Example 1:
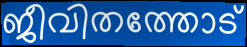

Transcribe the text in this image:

ജീവിതത്തോട്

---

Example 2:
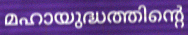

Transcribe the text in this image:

മഹായുദ്ധത്തിന്റെ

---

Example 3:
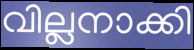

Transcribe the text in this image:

വില്ലനാക്കി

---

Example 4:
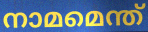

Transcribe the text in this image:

നാമമെന്ത്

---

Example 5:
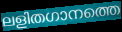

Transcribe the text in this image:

ലളിതഗാനത്തെ